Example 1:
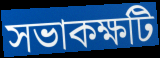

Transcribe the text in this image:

সভাকক্ষটি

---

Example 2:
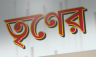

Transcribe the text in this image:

তৃণের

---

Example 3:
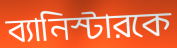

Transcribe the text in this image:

ব্যানিস্টারকে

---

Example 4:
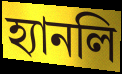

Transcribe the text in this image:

হ্যানলি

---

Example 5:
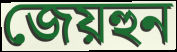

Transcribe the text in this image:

জেয়হুন